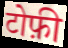
टोफ़ी